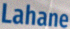
Lahane